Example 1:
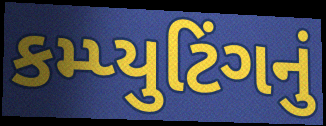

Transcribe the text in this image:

કમ્પ્યુટિંગનું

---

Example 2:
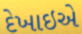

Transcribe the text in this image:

દેખાઇએ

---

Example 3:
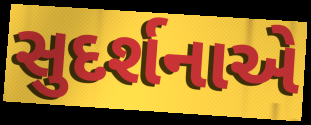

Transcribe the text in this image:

સુદર્શનાએ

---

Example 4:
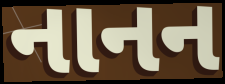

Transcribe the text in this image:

નાનન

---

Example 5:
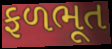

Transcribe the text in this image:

ફળભૂત